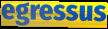
egressus